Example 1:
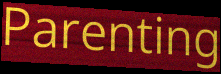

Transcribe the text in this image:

Parenting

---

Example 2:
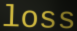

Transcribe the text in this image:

loss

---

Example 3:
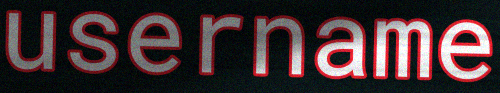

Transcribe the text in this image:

username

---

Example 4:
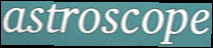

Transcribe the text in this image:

astroscope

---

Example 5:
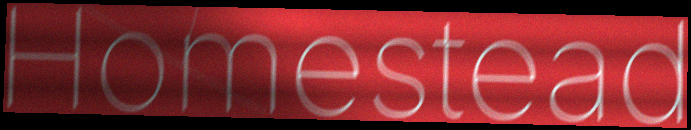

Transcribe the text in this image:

Homestead